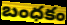
బంధకం